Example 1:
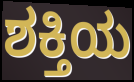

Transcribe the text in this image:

ಶಕ್ತಿಯ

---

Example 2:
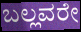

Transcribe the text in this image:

ಬಲ್ಲವರೇ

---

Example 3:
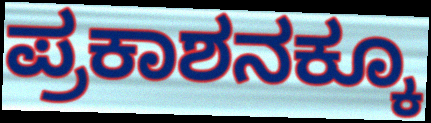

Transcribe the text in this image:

ಪ್ರಕಾಶನಕ್ಕೂ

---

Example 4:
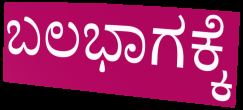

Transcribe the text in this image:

ಬಲಭಾಗಕ್ಕೆ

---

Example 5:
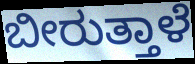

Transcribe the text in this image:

ಬೀರುತ್ತಾಳೆ